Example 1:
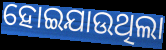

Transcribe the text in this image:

ହୋଇଯାଉଥିଲା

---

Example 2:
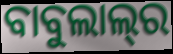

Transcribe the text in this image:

ବାବୁଲାଲ୍‍ର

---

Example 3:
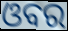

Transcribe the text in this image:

ଓବର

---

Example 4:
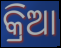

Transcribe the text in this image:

କ୍ରିଆ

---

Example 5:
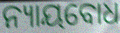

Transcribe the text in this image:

ନ୍ୟାୟବୋଧ